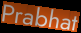
Prabhat